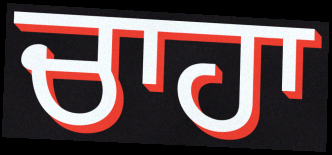
ਚਾਹਾ